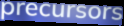
precursors